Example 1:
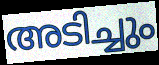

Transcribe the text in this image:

അടിച്ചും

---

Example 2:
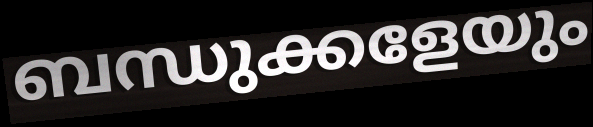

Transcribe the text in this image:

ബന്ധുക്കളേയും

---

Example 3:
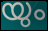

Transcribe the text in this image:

യും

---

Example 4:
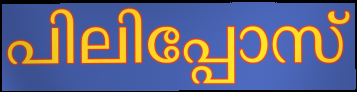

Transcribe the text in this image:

പിലിപ്പോസ്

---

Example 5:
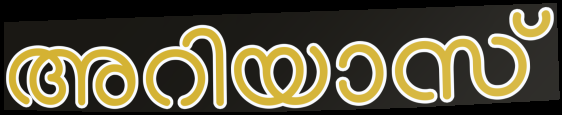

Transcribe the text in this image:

അറിയാസ്